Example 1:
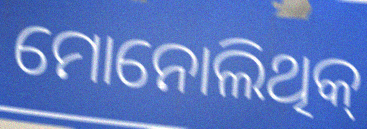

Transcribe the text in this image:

ମୋନୋଲିଥିକ୍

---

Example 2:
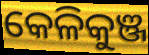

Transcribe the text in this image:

କେଳିକୁଞ୍ଜ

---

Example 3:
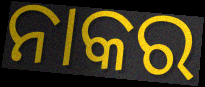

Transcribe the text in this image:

ନାକର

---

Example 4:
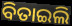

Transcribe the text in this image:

ବିତାଇଲି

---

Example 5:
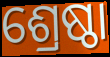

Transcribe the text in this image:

ଶ୍ରେଷ୍ଠା